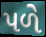
પળે